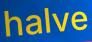
halve